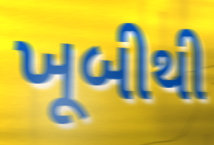
ખૂબીથી